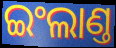
ଇଂଲାଣ୍ତ